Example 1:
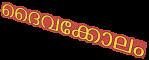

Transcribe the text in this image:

ദൈവക്കോലം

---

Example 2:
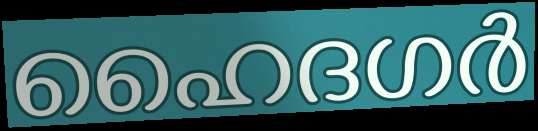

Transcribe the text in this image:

ഹൈദഗർ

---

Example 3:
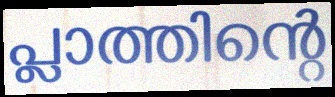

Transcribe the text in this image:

പ്ലാത്തിന്റെ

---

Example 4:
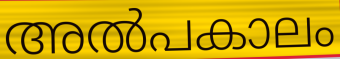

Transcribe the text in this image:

അൽപകാലം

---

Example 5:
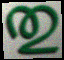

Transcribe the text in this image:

തു